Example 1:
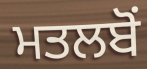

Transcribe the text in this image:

ਮਤਲਬੋਂ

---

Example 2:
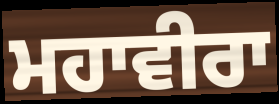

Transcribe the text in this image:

ਮਹਾਵੀਰਾ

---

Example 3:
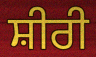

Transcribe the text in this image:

ਸ਼ੀਰੀ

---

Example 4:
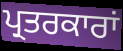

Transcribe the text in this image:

ਪ੍ਰਤਰਕਾਰਾਂ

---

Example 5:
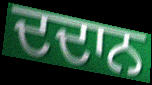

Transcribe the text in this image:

ਦਦਾਨ